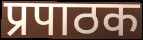
प्रपाठक